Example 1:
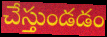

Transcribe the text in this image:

చేస్తుండడం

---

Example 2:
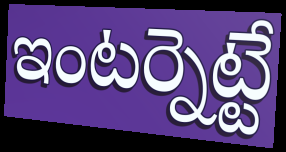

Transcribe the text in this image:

ఇంటర్నెట్టే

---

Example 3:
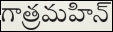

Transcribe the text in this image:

గాత్రమహిన్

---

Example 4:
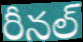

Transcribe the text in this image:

రీనల్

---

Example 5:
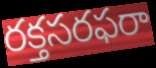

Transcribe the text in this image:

రక్తసరఫరా